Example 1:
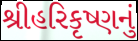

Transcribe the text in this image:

શ્રીહરિકૃષ્ણનું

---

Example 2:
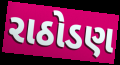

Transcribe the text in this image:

રાઠોડણ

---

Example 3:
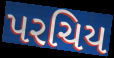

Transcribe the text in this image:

પરચિય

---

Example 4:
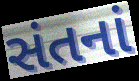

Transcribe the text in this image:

સંતનાં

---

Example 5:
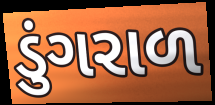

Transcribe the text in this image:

ડુંગરાળ